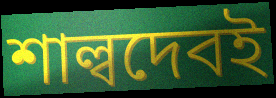
শাল্বদেবই